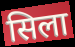
सिला